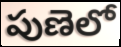
పుణెలో